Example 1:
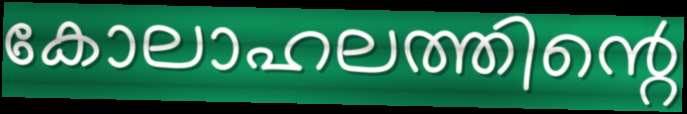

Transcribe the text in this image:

കോലാഹലത്തിന്റെ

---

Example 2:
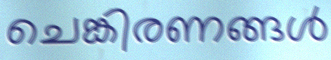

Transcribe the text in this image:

ചെങ്കിരണങ്ങൾ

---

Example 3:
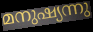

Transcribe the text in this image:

മനുഷ്യന്നു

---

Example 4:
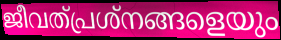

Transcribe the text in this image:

ജീവത്പ്രശ്നങ്ങളെയും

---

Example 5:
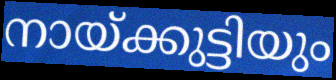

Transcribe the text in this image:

നായ്ക്കുട്ടിയും